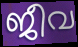
ജീവ